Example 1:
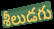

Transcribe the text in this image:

శీలుడగు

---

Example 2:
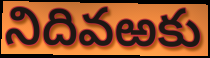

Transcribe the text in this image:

నిదివఱకు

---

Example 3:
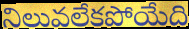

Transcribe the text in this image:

నిలువలేకపోయేది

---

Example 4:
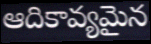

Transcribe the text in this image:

ఆదికావ్యమైన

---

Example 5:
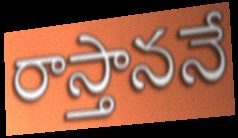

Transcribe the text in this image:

రాస్తాననే